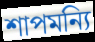
শাপমন্যি